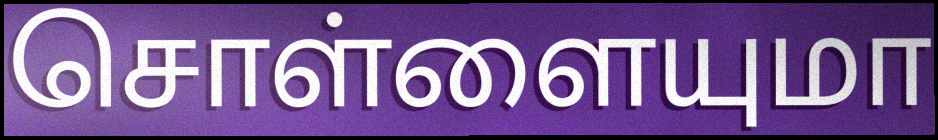
சொள்ளையுமா